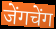
जेंगचेंग